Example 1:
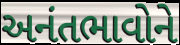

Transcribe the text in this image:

અનંતભાવોને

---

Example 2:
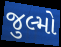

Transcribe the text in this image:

જુલ્મો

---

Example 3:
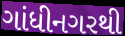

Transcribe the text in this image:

ગાંધીનગરથી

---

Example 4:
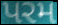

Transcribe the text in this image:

પરમ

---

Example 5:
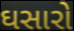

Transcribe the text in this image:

ઘસારો